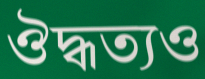
ঔদ্ধত্যও